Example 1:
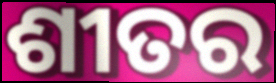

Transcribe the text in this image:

ଶୀତର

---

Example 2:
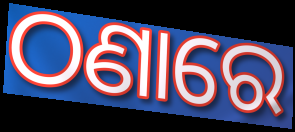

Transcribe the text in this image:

ଠଣାରେ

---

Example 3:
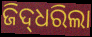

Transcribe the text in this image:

ଜିଦ୍‌ଧରିଲା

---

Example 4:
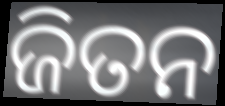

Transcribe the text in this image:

ଜିତନ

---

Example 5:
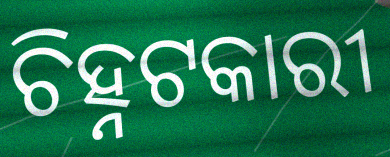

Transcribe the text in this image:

ଚିହ୍ନଟକାରୀ